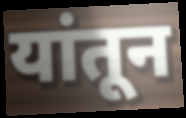
यांतून